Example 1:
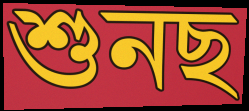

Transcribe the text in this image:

শুনছ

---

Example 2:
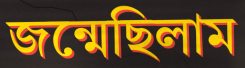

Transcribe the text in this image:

জন্মেছিলাম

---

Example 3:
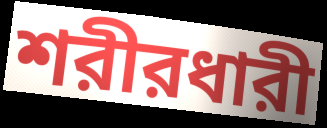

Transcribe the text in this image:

শরীরধারী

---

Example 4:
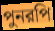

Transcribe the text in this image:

পুনরপি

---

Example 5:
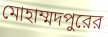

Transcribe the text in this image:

মোহাম্মদপুরের